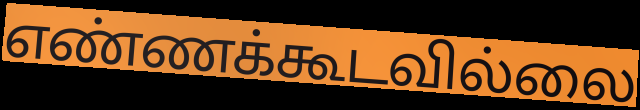
எண்ணக்கூடவில்லை